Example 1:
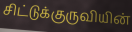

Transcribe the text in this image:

சிட்டுக்குருவியின்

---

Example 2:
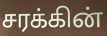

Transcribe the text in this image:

சரக்கின்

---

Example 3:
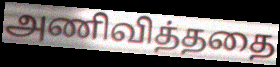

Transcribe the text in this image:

அணிவித்ததை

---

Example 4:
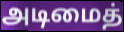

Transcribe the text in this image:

அடிமைத்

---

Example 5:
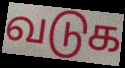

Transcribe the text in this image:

வடுக